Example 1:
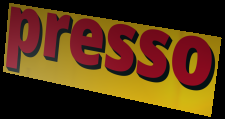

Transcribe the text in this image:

presso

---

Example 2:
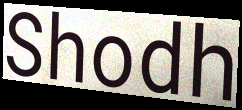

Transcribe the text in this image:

Shodh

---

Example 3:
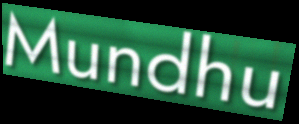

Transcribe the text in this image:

Mundhu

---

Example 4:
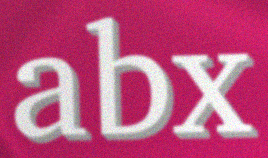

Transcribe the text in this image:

abx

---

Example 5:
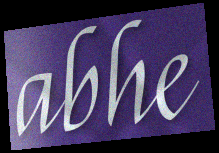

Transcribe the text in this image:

abhe